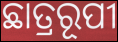
ଛାତ୍ରରୂପୀ